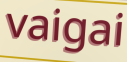
vaigai